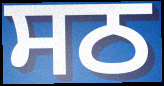
ਸਠ